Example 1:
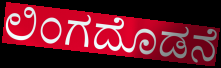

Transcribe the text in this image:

ಲಿಂಗದೊಡನೆ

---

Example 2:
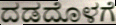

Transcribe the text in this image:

ದಡದೊಳಗೆ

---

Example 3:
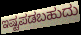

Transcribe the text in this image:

ಇಷ್ಟಪಡಬಹುದು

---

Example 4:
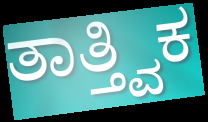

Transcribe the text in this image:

ತಾತ್ತ್ವಿಕ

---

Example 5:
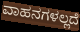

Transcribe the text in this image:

ವಾಹನಗಳಲ್ಲದೆ